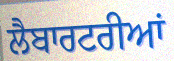
ਲੈਬਾਰਟਰੀਆਂ